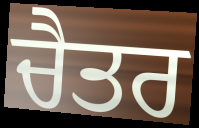
ਚੈਤਰ